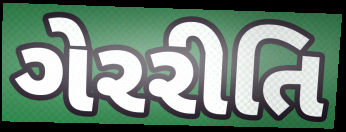
ગેરરીતિ